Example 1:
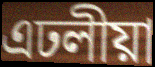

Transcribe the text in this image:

এঢলীয়া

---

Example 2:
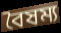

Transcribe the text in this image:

বৈষম্য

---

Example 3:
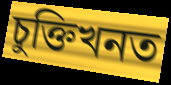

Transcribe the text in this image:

চুক্তিখনত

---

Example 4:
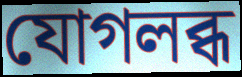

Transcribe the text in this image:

যোগলব্ধ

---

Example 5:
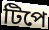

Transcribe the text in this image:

টিপে